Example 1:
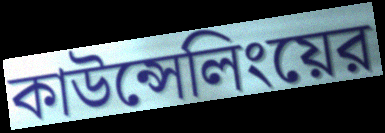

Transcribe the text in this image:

কাউন্সেলিংয়ের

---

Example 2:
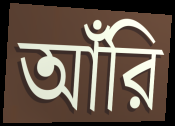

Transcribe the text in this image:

আঁরি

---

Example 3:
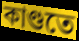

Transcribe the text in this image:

কাণ্ডতে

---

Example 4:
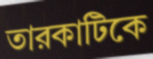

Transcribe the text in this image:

তারকাটিকে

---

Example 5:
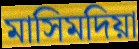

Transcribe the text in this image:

মাসিমদিয়া